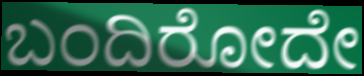
ಬಂದಿರೋದೇ